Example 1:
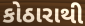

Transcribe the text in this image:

કોઠારાથી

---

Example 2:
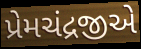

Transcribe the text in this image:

પ્રેમચંદ્રજીએ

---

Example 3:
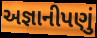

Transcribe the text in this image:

અજ્ઞાનીપણું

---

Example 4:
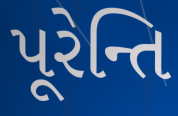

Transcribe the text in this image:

પૂરેન્તિ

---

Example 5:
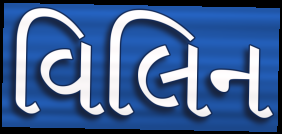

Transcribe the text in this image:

વિલિન